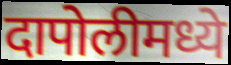
दापोलीमध्ये